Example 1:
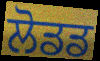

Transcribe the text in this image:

ਲੋਡਡ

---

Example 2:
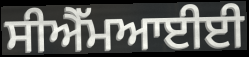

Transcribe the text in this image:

ਸੀਐੱਮਆਈਈ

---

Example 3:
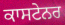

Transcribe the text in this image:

ਕਾਸਟੇਨਰ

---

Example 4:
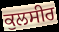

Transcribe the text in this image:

ਕੁਲਸੀਰ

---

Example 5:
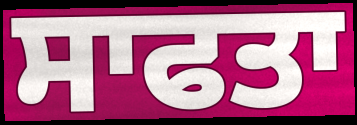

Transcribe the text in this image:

ਸਾਫਤਾ